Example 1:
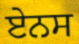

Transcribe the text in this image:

ਏਨਸ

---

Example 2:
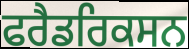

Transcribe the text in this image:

ਫਰੈਡਰਿਕਸਨ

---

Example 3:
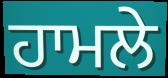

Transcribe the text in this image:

ਹਾਮਲੇ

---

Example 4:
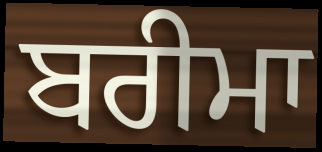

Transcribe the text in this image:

ਬਰੀਮਾ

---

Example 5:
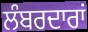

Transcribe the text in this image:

ਲੰਬਰਦਾਰਾਂ